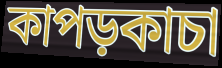
কাপড়কাচা